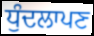
ਧੁੰਦਲਾਪਣ